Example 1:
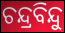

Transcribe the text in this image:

ଚନ୍ଦ୍ରବିନ୍ଦୁ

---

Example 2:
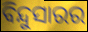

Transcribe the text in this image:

ବିନ୍ଦୁସାରର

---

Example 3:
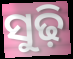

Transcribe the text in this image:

ସୁଢ଼ି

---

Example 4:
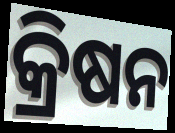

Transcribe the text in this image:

କ୍ରିଷନ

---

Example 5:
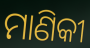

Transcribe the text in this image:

ମାଣିକୀ